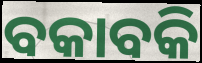
ବକାବକି